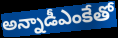
అన్నాడీఎంకేతో